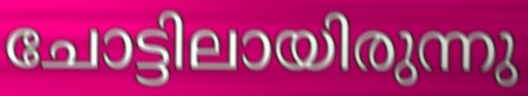
ചോട്ടിലായിരുന്നു